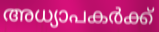
അധ്യാപകർക്ക്